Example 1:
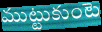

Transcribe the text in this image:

ముట్టుకుంటె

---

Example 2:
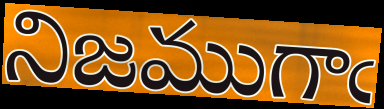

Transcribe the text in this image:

నిజముగాఁ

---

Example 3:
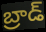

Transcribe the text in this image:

బ్రాడ్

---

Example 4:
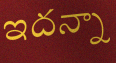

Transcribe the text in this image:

ఇదన్నా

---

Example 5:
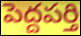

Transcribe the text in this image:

పెద్దపర్తి